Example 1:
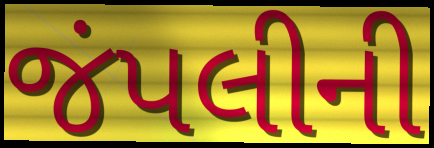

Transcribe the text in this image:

જંપલીની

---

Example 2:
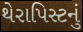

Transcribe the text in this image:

થેરાપિસ્ટનું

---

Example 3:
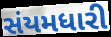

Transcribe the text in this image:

સંયમધારી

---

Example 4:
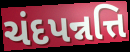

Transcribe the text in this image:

ચંદપન્નત્તિ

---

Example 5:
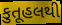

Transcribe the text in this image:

કુતૂહલથી